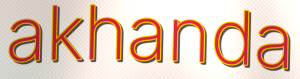
akhanda